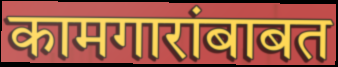
कामगारांबाबत